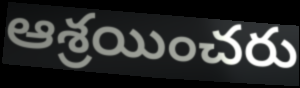
ఆశ్రయించరు